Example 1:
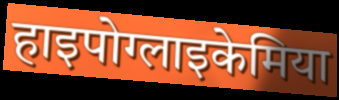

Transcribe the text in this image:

हाइपोग्लाइकेमिया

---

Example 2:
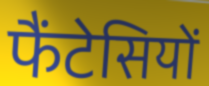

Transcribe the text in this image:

फैंटेसियों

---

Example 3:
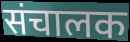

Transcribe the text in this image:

संचालक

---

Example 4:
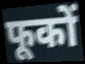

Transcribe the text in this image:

फूकों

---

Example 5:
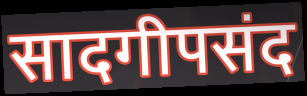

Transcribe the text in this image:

सादगीपसंद